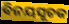
ବିନୟସୂଚକ